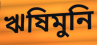
ঋষিমুনি